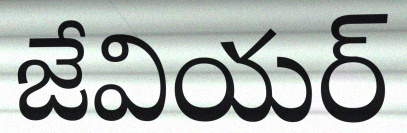
జేవియర్